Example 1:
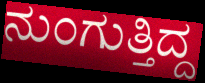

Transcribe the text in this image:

ನುಂಗುತ್ತಿದ್ದ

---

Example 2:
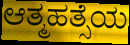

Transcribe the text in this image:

ಆತ್ಮಹತ್ಸೆಯ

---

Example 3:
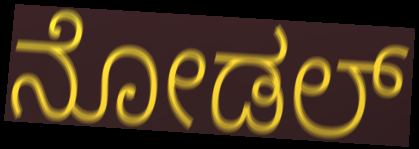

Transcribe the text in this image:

ನೋಡಲ್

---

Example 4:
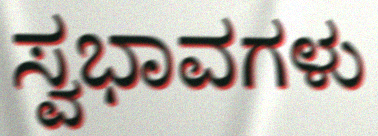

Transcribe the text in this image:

ಸ್ವಭಾವಗಳು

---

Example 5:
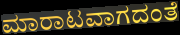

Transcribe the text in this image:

ಮಾರಾಟವಾಗದಂತೆ